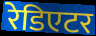
रेडिएटर